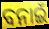
ବନାଇଁ